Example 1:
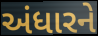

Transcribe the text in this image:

અંધારને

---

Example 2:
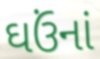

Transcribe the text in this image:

ઘઉંનાં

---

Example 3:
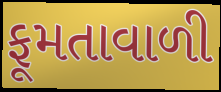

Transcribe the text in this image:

ફૂમતાવાળી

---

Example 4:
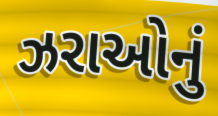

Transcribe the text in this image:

ઝરાઓનું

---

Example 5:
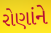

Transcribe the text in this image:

રોણાંને